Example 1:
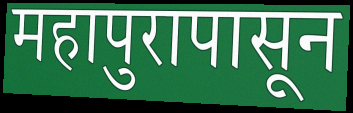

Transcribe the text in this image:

महापुरापासून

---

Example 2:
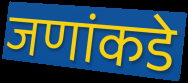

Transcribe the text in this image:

जणांकडे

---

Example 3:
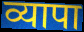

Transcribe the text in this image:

व्यापा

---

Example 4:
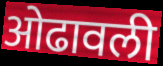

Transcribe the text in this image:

ओढावली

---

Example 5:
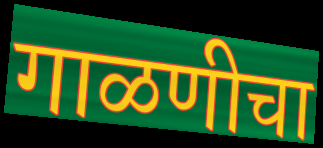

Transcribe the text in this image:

गाळणीचा